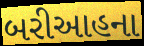
બરીઆહના